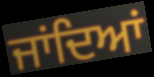
ਜਾਂਦਿਆਂ